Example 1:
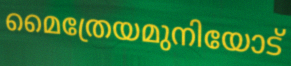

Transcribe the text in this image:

മൈത്രേയമുനിയോട്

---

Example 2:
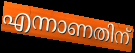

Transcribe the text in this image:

എന്നാണതിന്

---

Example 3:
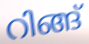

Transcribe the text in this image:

റിങ്ങ്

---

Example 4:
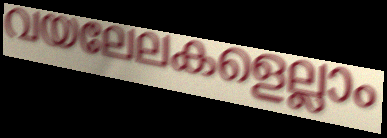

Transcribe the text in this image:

വയലേലകളെല്ലാം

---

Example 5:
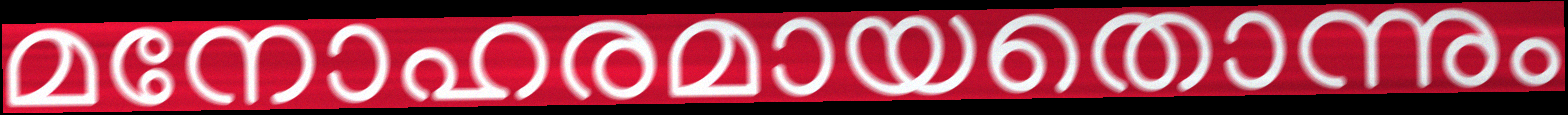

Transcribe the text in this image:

മനോഹരമായതൊന്നും